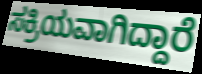
ಸಕ್ರಿಯವಾಗಿದ್ದಾರೆ